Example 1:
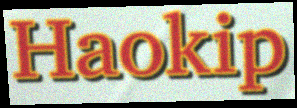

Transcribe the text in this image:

Haokip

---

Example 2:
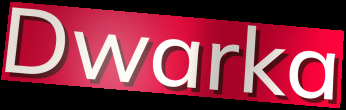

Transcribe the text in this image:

Dwarka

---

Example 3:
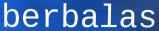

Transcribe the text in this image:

berbalas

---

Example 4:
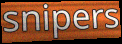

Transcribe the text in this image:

snipers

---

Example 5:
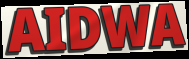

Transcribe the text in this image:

AIDWA